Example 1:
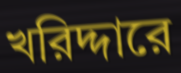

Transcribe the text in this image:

খরিদ্দারে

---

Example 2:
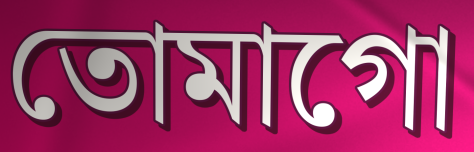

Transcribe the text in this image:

তোমাগো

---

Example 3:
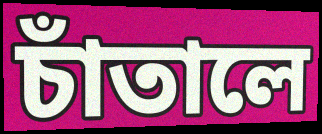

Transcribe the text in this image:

চাঁতালে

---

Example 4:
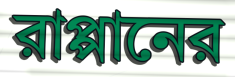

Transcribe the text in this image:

রাপ্পানের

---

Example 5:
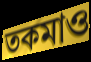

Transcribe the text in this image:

তকমাও